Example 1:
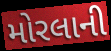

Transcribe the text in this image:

મોરલાની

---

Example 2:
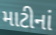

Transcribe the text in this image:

માટીનાં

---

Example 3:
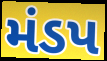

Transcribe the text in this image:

મંડપ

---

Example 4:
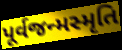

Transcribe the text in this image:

પૂર્વજન્મસ્મૃતિ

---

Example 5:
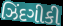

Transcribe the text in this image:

ઝિંદગીકી